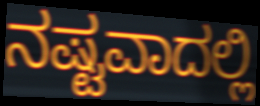
ನಷ್ಟವಾದಲ್ಲಿ